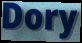
Dory